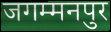
जगम्मनपुर